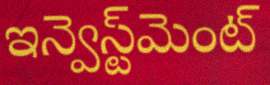
ఇన్వెస్ట్‌మెంట్